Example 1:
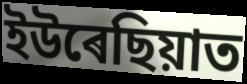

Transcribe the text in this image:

ইউৰেছিয়াত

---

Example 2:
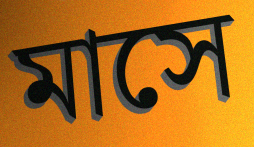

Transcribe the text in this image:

মাসে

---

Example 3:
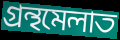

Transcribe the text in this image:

গ্ৰন্থমেলাত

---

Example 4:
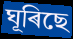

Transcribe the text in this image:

ঘূৰিছে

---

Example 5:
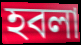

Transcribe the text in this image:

হবলা